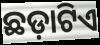
ଛଡ଼ାଟିଏ